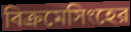
বিক্রমেসিংহের